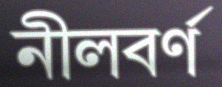
নীলবর্ণ